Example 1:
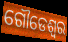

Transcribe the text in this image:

ଗୌଡେଶ୍ୱର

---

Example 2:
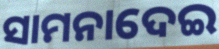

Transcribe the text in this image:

ସାମନାଦେଇ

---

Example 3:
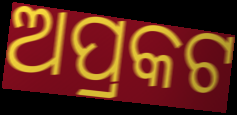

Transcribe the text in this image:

ଅପ୍ରକଟ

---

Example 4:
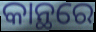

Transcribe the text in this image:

କାନ୍ଥରେ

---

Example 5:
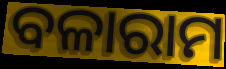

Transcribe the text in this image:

ବଳାରାମ